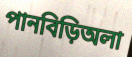
পানবিড়িঅলা